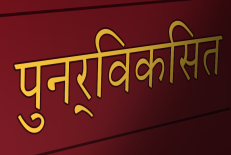
पुनर्विकसित